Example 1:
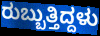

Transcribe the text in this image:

ರುಬ್ಬುತ್ತಿದ್ದಳು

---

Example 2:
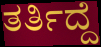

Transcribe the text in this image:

ತರ್ತಿದ್ದೆ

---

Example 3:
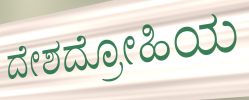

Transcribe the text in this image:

ದೇಶದ್ರೋಹಿಯ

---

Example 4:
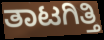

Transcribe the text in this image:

ತಾಟಗಿತ್ತಿ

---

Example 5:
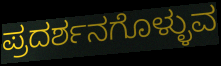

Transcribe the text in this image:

ಪ್ರದರ್ಶನಗೊಳ್ಳುವ